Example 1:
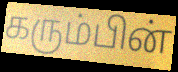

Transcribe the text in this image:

கரும்பின்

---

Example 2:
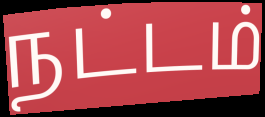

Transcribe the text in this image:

நட்டம்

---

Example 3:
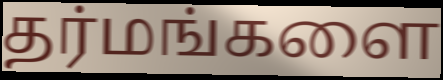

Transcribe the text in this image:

தர்மங்களை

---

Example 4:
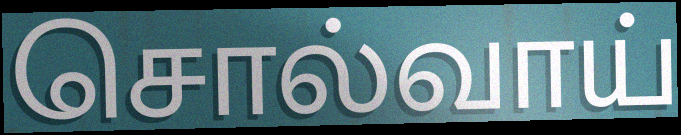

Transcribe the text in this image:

சொல்வாய்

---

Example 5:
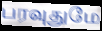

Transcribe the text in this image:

பரவுதுமே